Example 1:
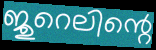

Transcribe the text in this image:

ജുറെലിന്റെ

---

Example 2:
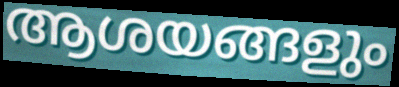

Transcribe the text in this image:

ആശയങ്ങളും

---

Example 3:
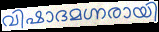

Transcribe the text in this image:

വിഷാദമഗ്നരായി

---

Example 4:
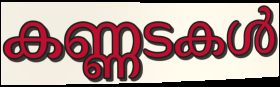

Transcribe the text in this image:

കണ്ണടകൾ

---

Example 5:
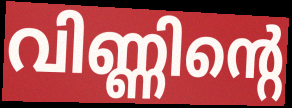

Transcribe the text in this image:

വിണ്ണിന്റെ